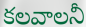
కలవాలనీ